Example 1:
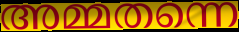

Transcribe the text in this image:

അമ്മതന്നെ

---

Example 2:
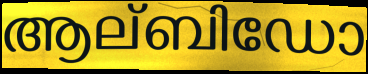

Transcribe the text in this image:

ആല്ബിഡോ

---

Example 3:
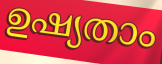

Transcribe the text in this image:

ഉഷ്യതാം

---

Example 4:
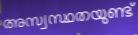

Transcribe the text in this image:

അസ്വസ്ഥതയുണ്ട്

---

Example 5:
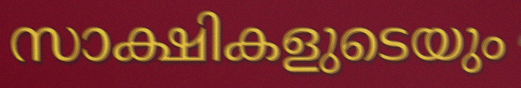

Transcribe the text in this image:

സാക്ഷികളുടെയും